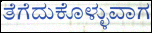
ತೆಗೆದುಕೊಳ್ಳುವಾಗ